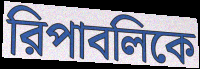
রিপাবলিকে